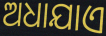
ଅଧାଯାଏ